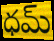
ధమ్